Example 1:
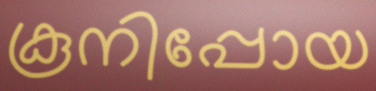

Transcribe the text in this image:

കൂനിപ്പോയ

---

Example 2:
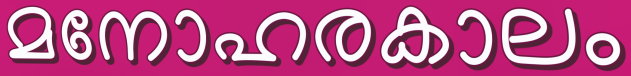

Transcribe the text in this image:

മനോഹരകാലം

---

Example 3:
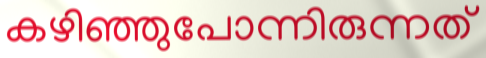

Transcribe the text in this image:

കഴിഞ്ഞുപോന്നിരുന്നത്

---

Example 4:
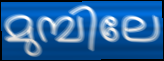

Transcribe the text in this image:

മുമ്പിലേ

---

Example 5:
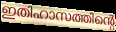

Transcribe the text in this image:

ഇതിഹാസത്തിന്റെ